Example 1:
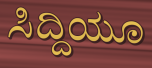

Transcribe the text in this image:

ಸಿದ್ದಿಯೂ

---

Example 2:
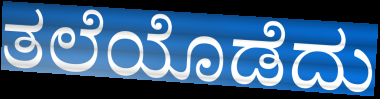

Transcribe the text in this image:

ತಲೆಯೊಡೆದು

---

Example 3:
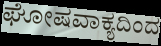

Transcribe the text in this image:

ಘೋಷವಾಕ್ಯದಿಂದ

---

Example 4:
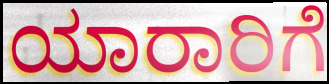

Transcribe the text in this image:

ಯಾರಾರಿಗೆ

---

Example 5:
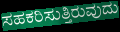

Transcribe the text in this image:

ಸಹಕರಿಸುತ್ತಿರುವುದು